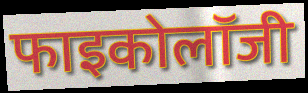
फाइकोलॉजी